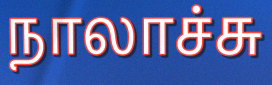
நாலாச்சு